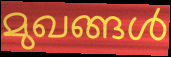
മുഖങ്ങൾ